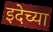
इदेच्या